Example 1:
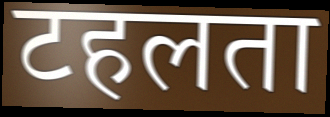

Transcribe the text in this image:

टहलता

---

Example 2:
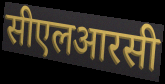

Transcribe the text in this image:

सीएलआरसी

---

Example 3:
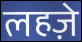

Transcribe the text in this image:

लहज़े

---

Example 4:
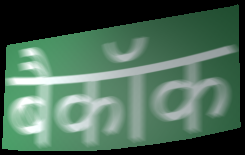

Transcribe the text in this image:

बैकॉक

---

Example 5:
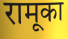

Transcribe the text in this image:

रामूका